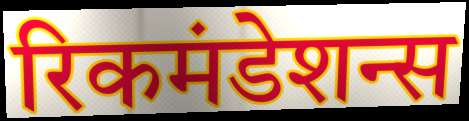
रिकमंडेशन्स